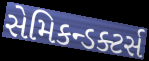
સેમિકન્ડક્ટર્સ